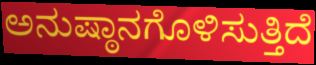
ಅನುಷ್ಠಾನಗೊಳಿಸುತ್ತಿದೆ